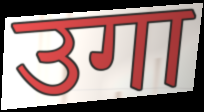
उगा